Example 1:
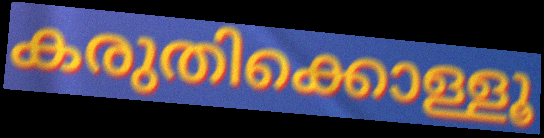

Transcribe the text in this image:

കരുതിക്കൊള്ളൂ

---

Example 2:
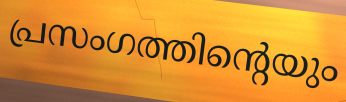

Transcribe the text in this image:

പ്രസംഗത്തിന്റെയും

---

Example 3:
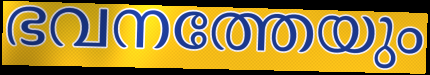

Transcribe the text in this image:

ഭവനത്തേയും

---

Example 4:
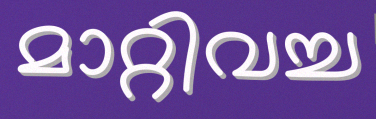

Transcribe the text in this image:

മാറ്റിവച്ച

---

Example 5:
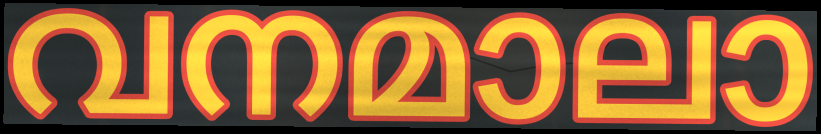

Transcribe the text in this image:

വനമാലാ